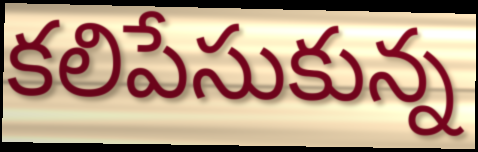
కలిపేసుకున్న